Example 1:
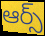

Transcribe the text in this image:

ఆర్స్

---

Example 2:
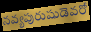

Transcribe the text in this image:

నవ్యపురుషుడెవరో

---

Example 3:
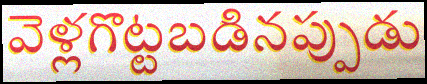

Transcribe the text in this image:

వెళ్లగొట్టబడినప్పుడు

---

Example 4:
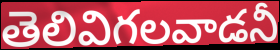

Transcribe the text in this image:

తెలివిగలవాడనీ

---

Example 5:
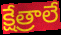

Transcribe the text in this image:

క్షేత్రాలే